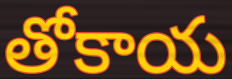
తోకాయ